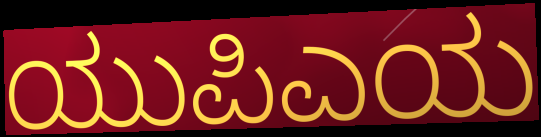
ಯುಪಿಎಯ